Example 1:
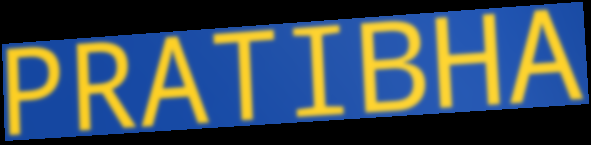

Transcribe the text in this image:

PRATIBHA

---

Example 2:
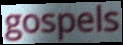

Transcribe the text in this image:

gospels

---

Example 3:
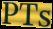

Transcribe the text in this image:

PTs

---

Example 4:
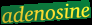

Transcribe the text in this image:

adenosine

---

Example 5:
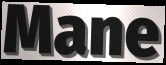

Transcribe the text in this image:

Mane